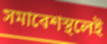
সমাবেশস্থলেই